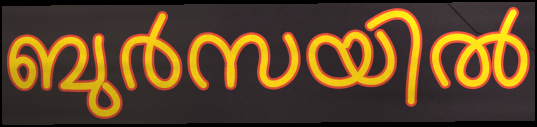
ബുർസയിൽ